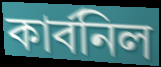
কার্বনিল